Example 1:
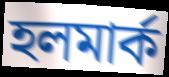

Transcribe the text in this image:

হলমার্ক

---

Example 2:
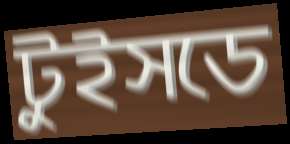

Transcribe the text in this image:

টুইসডে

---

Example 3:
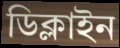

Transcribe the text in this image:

ডিক্লাইন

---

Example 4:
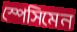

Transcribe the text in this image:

স্পেসিমেন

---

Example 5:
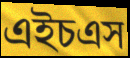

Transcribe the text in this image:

এইচএস